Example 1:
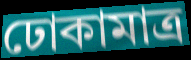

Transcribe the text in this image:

ঢোকামাত্র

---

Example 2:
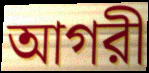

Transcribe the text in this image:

আগরী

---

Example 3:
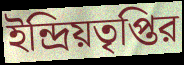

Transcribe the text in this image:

ইন্দ্রিয়তৃপ্তির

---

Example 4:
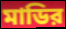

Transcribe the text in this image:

মাডির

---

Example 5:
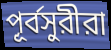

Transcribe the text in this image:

পূর্বসুরীরা